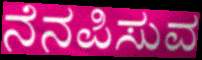
ನೆನಪಿಸುವ